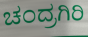
ಚಂದ್ರಗಿರಿ